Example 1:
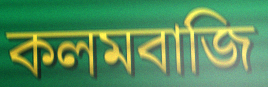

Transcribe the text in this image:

কলমবাজি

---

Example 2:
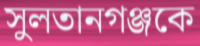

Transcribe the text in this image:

সুলতানগঞ্জকে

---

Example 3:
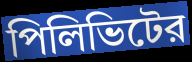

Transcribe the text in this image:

পিলিভিটের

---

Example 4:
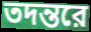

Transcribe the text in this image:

তদন্তরে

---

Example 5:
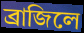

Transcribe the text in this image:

ব্রাজিলে